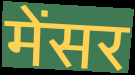
मेंसर